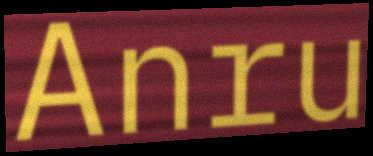
Anru